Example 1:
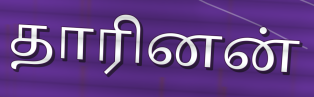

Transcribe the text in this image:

தாரினன்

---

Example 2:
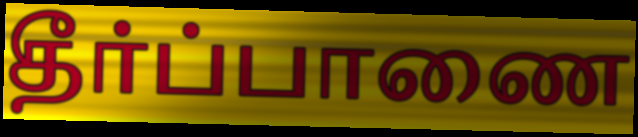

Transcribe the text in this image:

தீர்ப்பாணை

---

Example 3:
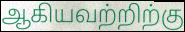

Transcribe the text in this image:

ஆகியவற்றிற்கு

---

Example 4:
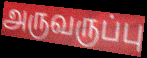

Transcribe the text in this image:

அருவருப்பு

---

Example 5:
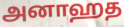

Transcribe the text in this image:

அனாஹத